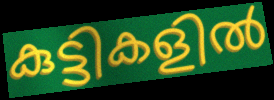
കുട്ടികളിൽ